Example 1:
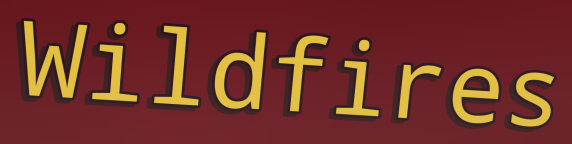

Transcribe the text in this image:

Wildfires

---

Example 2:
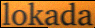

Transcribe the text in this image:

lokada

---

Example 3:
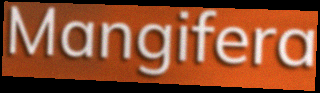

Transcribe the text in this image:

Mangifera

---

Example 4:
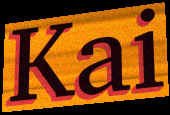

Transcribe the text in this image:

Kai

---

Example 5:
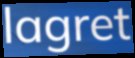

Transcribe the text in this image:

lagret